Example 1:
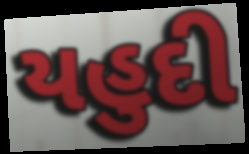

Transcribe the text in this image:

યહુદી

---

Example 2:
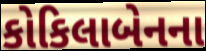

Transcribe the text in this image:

કોકિલાબેનના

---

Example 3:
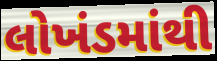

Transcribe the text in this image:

લોખંડમાંથી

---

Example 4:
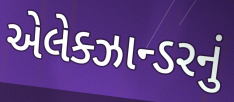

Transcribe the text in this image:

એલેક્ઝાન્ડરનું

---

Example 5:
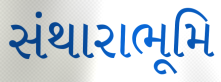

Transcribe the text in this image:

સંથારાભૂમિ